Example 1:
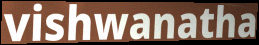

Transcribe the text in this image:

vishwanatha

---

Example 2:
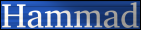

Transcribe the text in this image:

Hammad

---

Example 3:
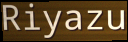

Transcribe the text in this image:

Riyazu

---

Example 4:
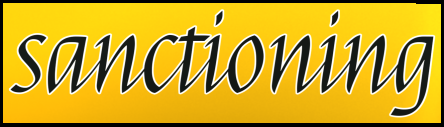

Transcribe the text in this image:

sanctioning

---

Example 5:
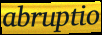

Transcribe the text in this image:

abruptio